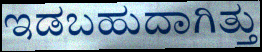
ಇಡಬಹುದಾಗಿತ್ತು